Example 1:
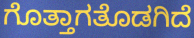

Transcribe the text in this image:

ಗೊತ್ತಾಗತೊಡಗಿದೆ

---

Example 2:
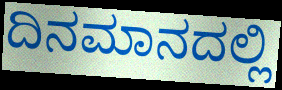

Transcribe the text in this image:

ದಿನಮಾನದಲ್ಲಿ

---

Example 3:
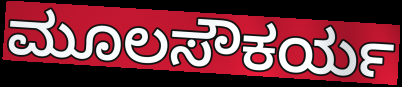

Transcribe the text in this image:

ಮೂಲಸೌಕರ್ಯ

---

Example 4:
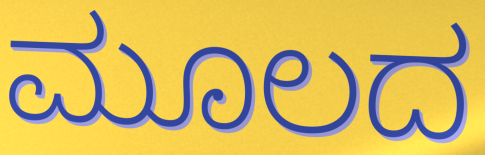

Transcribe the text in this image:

ಮೂಲದ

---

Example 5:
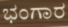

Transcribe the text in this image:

ಭಂಗಾರ